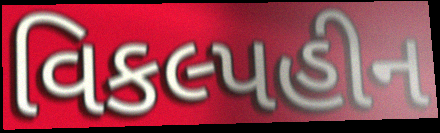
વિકલ્પહીન